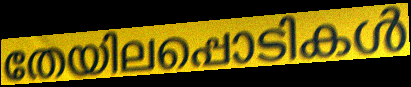
തേയിലപ്പൊടികൾ